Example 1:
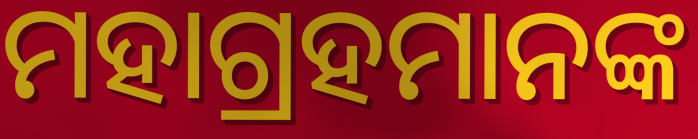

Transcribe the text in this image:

ମହାଗ୍ରହମାନଙ୍କ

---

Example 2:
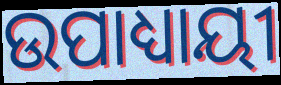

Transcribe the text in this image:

ଉପାଧ୍ୟାୟୀ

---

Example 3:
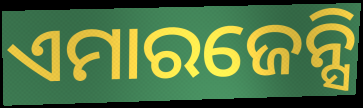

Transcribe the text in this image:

ଏମାରଜେନ୍ସି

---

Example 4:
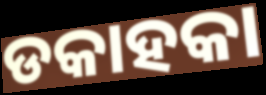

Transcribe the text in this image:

ଡକାହକା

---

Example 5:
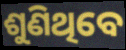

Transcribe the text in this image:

ଶୁଣିଥିବେ